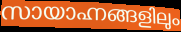
സായാഹ്നങ്ങളിലും